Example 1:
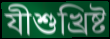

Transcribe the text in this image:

যীশুখ্রিষ্ট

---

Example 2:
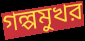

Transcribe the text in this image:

গল্পমুখর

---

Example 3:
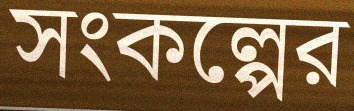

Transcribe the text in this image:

সংকল্পের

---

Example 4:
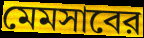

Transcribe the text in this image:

মেমসাবের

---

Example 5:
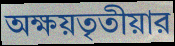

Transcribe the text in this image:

অক্ষয়তৃতীয়ার